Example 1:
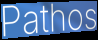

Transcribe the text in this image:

Pathos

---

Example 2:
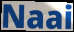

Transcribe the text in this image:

Naai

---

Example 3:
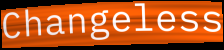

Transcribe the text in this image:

Changeless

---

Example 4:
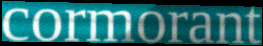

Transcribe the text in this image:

cormorant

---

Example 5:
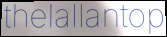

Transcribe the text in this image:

thelallantop